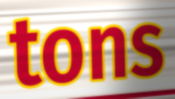
tons